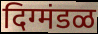
दिग्मंडळ